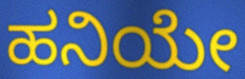
ಹನಿಯೇ